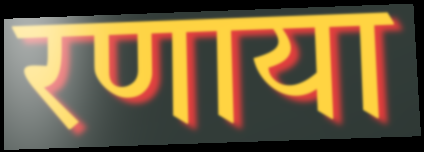
रणाया